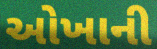
ઓખાની